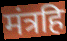
मंत्रहि